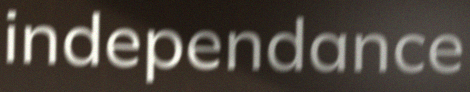
independance